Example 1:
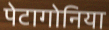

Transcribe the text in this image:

पेटागोनिया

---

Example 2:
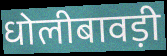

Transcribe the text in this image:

धोलीबावड़ी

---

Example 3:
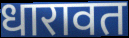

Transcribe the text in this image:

धारावत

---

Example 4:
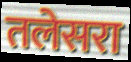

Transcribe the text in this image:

तलेसरा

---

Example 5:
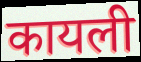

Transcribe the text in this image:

कायली